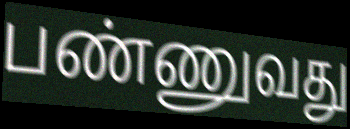
பண்ணுவது